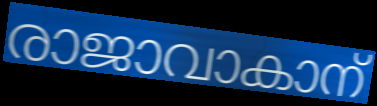
രാജാവാകാന്